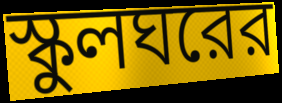
স্কুলঘরের